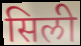
सिली